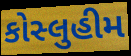
કોસ્લુહીમ